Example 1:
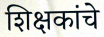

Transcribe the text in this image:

शिक्षकांचे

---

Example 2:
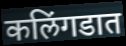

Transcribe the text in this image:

कलिंगडात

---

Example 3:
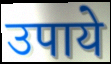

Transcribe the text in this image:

उपाये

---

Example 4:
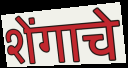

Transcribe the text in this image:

शेंगाचे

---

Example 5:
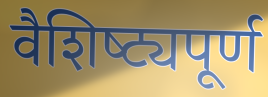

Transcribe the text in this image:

वैशिष्‍ट्यपूर्ण